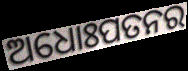
ଅଧୋଃପତନର